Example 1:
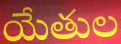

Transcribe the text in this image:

యేతుల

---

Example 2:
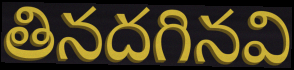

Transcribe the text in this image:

తినదగినవి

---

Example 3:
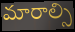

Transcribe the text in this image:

మారాల్సి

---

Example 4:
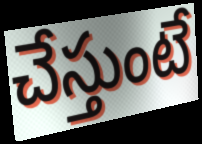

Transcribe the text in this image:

చేస్తుంటే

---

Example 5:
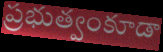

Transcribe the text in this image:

ప్రభుత్వంకూడా